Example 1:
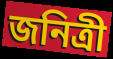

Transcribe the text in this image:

জনিত্রী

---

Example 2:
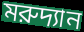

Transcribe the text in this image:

মরুদ্যান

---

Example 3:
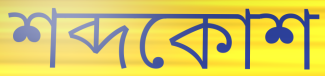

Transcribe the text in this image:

শব্দকোশ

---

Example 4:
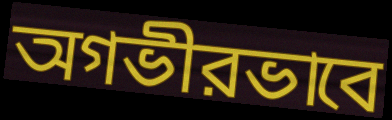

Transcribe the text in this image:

অগভীরভাবে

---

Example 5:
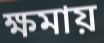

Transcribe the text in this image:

ক্ষমায়